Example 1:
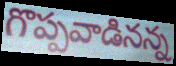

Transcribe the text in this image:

గొప్పవాడినన్న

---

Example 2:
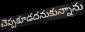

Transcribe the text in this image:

చెప్పకూడదనుకున్నాను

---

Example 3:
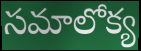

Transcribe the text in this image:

సమాలోక్య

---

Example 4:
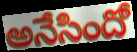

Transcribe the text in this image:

అనేసిందో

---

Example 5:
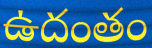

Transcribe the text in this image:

ఉదంతం